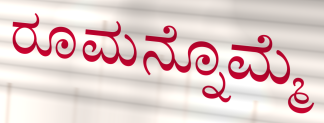
ರೂಮನ್ನೊಮ್ಮೆ